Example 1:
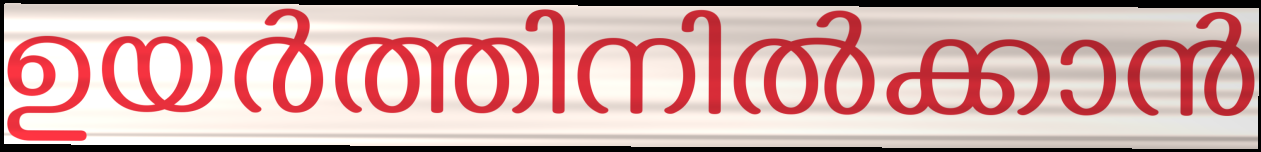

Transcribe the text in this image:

ഉയർത്തിനിൽക്കാൻ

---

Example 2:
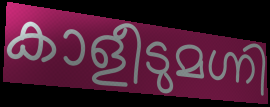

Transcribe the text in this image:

കാളീടുമഗ്നി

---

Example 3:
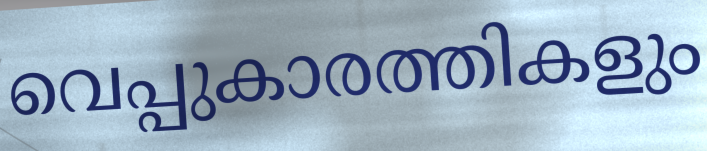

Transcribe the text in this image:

വെപ്പുകാരത്തികളും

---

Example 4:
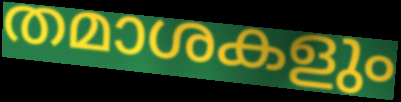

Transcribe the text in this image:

തമാശകളും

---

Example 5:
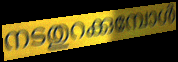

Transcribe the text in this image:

നടതുറക്കുമ്പോൾ